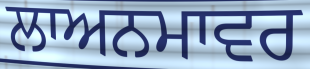
ਲਾਅਨਮਾਵਰ